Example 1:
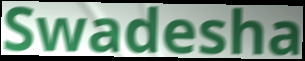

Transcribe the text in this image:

Swadesha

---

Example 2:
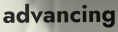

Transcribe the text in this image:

advancing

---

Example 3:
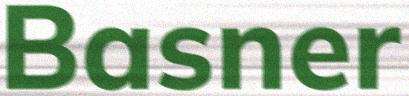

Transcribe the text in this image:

Basner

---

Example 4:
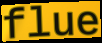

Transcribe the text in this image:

flue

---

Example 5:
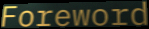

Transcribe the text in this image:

Foreword